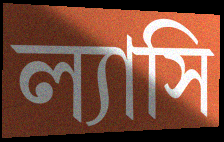
ল্যাসি